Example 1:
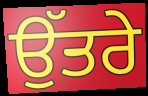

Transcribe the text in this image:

ਉੱਤਰੇ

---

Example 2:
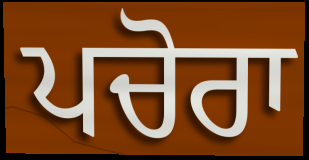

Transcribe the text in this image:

ਪਚੋਰਾ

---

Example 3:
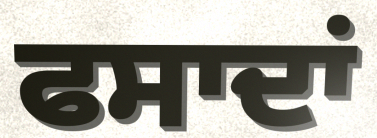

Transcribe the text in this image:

ਫਸਾਦਾਂ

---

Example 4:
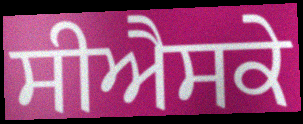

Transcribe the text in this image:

ਸੀਐਸਕੇ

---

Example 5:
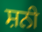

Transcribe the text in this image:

ਸ਼ਨੀ